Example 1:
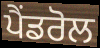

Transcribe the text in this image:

ਪੈਂਡਰੋਲ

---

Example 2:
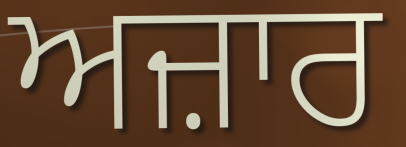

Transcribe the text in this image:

ਅਜ਼ਾਰ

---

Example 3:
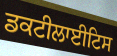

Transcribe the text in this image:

ਡਕਟੀਲਾਈਟਿਸ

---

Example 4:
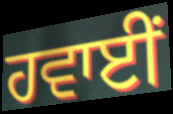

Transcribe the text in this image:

ਹਵਾਈਂ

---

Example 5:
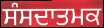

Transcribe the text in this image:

ਸੰਸਦਾਤਮਕ